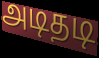
அடிதடி